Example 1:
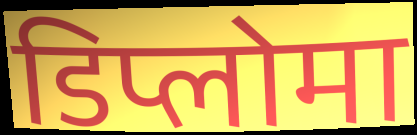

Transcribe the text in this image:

डिप्‍लोमा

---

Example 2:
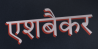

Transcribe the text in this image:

एशबैकर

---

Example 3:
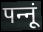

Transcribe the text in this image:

पन्नूं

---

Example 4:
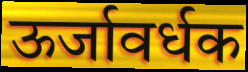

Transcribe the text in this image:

ऊर्जावर्धक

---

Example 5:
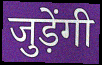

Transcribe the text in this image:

जुड़ेंगी